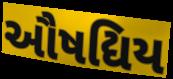
ઔષદ્યિય